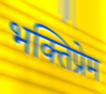
भक्तिप्रेम